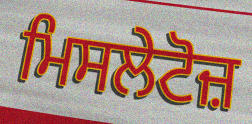
ਮਿਸਲੇਟੋਜ਼